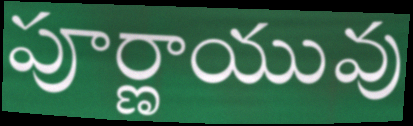
పూర్ణాయువు